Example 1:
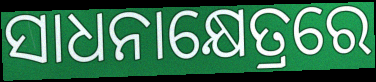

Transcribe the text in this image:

ସାଧନାକ୍ଷେତ୍ରରେ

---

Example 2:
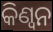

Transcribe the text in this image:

କିଣ୍ୱନ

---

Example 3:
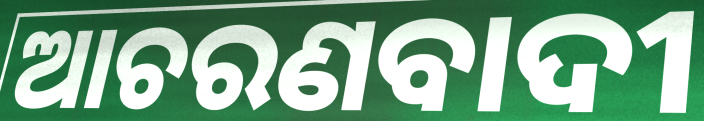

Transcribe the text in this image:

ଆଚରଣବାଦୀ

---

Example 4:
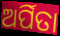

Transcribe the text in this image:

ଅର୍ପିତା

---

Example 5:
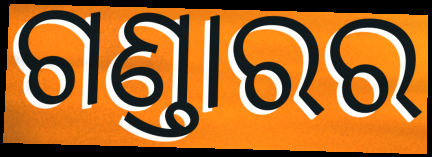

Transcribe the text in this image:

ଗଣ୍ଡାରର